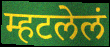
म्हटलेलं